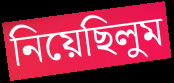
নিয়েছিলুম